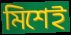
মিশেই